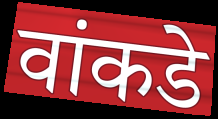
वांकडे